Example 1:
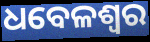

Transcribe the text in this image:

ଧବେଳଶ୍ୱର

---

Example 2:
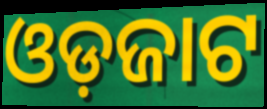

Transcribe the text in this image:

ଓଡ଼ଜାଟ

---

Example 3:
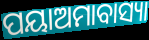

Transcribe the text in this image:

ପୟାଅମାବାସ୍ୟା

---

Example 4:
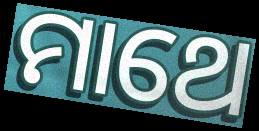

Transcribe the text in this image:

ମାଥେ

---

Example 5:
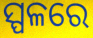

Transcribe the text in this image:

ସ୍ପଳରେ